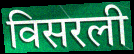
विसरली